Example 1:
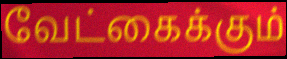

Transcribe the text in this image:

வேட்கைக்கும்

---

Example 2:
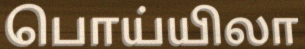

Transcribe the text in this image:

பொய்யிலா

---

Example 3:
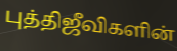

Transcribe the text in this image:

புத்திஜீவிகளின்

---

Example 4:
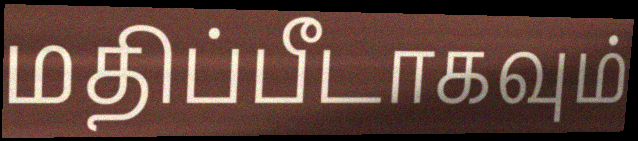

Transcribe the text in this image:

மதிப்பீடாகவும்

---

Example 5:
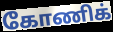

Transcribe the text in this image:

கோணிக்